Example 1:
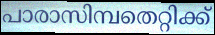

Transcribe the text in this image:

പാരാസിമ്പതെറ്റിക്ക്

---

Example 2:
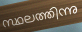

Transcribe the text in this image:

സ്ഥലത്തിന്നു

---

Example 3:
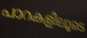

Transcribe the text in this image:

പാറകളിലൂടെ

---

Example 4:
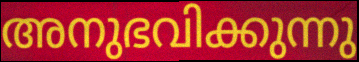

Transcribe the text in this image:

അനുഭവിക്കുന്നു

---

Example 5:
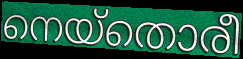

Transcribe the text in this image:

നെയ്തൊരീ